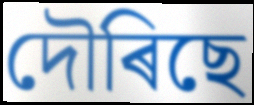
দৌৰিছে